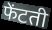
फेंटती